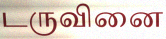
டருவினை